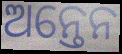
ଅନ୍ତେନ